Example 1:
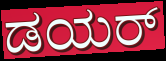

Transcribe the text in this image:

ಡಯರ್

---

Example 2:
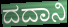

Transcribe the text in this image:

ದದಾನಿ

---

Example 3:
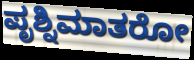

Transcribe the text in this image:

ಪೃಶ್ನಿಮಾತರೋ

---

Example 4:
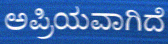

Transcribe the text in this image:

ಅಪ್ರಿಯವಾಗಿದೆ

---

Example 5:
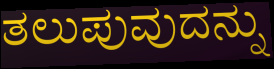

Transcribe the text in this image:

ತಲುಪುವುದನ್ನು